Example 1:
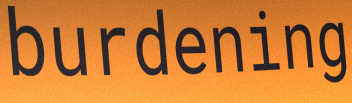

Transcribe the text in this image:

burdening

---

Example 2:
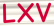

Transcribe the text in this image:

LXV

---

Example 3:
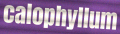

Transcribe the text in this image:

calophyllum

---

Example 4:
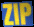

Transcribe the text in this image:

ZIP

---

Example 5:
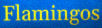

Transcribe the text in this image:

Flamingos